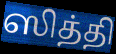
ஸித்தி